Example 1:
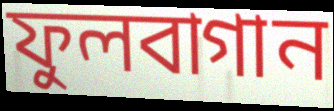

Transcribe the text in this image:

ফুলবাগান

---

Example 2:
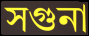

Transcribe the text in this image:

সগুনা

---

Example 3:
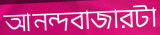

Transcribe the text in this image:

আনন্দবাজারটা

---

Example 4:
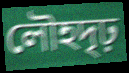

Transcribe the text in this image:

লৌহদৃঢ়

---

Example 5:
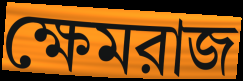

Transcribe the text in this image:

ক্ষেমরাজ